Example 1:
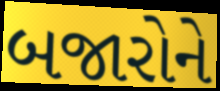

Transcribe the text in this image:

બજારોને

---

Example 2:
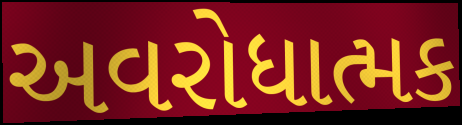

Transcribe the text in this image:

અવરોધાત્મક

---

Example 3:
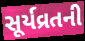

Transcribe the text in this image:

સૂર્યવ્રતની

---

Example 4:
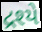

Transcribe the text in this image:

દ્રશ્યે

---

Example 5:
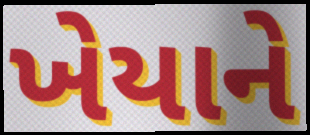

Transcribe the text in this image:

ખેયાને